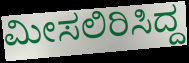
ಮೀಸಲಿರಿಸಿದ್ದ